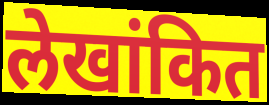
लेखांकित